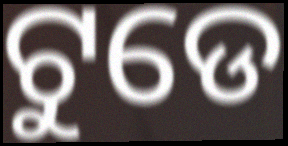
ଟୁଡେ